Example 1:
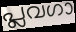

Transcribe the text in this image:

പ്ലവഗാ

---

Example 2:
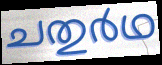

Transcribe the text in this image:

ചതുർഥ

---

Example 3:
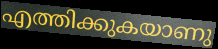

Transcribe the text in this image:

എത്തിക്കുകയാണു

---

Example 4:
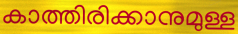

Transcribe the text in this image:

കാത്തിരിക്കാനുമുള്ള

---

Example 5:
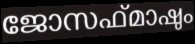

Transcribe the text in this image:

ജോസഫ്മാഷും